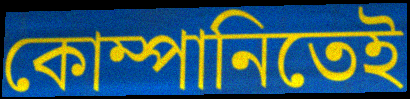
কোম্পানিতেই